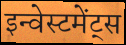
इन्वेस्टमेंट्स